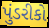
પુંડરીકો